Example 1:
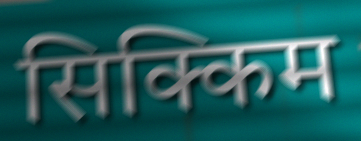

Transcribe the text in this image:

सिक्किम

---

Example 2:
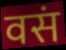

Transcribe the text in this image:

वसं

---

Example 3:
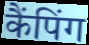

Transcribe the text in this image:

कैंपिंग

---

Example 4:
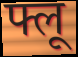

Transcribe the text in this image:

फ्लू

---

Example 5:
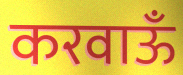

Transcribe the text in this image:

करवाऊँ